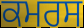
ਕਮਰਸ